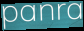
panra